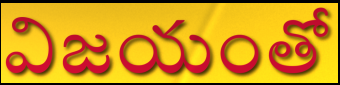
విజయంతో